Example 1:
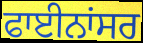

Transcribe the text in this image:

ਫਾਈਨਾਂਸਰ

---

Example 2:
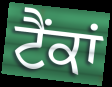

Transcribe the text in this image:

ਟੈਂਕਾਂ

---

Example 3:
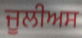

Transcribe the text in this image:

ਜੂਲੀਅਸ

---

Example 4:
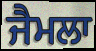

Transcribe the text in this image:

ਜੈਮਲਾ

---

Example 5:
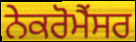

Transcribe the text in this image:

ਨੇਕਰੋਮੈਂਸਰ